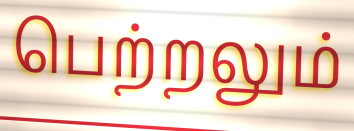
பெற்றலும்